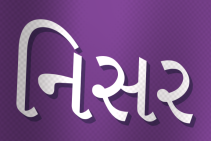
નિસર